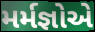
મર્મજ્ઞોએ